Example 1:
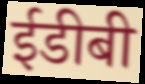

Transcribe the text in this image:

ईडीबी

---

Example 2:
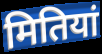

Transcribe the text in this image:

मितियां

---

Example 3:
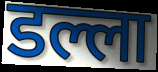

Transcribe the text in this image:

डल्ला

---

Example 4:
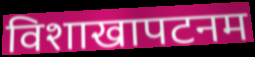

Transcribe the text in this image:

विशाखापटनम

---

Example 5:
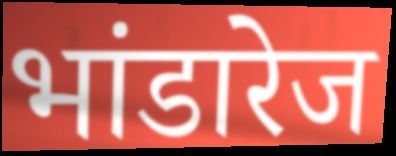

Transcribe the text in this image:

भांडारेज